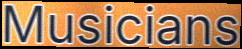
Musicians